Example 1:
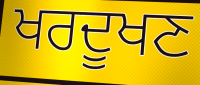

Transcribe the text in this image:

ਖਰਦੂਖਣ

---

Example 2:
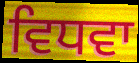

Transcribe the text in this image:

ਵਿਧਵਾ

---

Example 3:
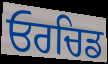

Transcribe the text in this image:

ਓਰਚਿਡ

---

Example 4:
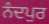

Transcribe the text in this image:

ਨੰਦਪੁਰ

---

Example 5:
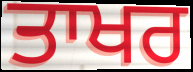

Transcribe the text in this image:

ਤਾਖਰ